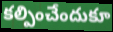
కల్పించేందుకూ